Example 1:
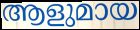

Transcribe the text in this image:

ആളുമായ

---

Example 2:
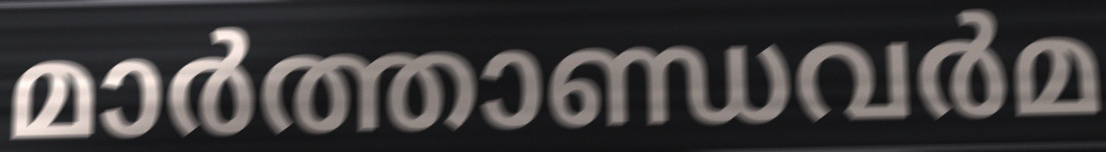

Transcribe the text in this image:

മാർത്താണ്ഡവർമ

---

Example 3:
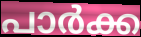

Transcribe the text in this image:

പാർക്ക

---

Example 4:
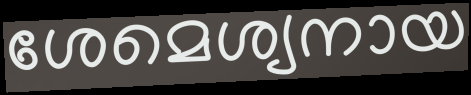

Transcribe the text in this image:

ശേമെശ്യനായ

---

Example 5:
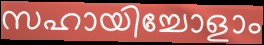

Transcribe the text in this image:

സഹായിച്ചോളാം